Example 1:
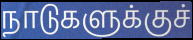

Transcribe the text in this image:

நாடுகளுக்குச்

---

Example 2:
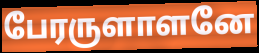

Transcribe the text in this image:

பேரருளாளனே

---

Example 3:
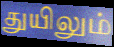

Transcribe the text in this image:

துயிலும்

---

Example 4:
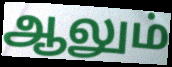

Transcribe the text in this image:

ஆலும்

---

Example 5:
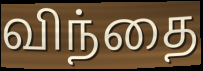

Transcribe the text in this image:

விந்தை